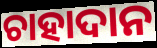
ଚାହାଦାନ